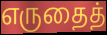
எருதைத்